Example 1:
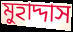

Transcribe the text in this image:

মুহাদ্দাস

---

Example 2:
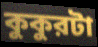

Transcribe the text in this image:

কুকুরটা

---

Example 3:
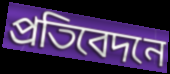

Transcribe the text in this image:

প্রতিবেদনে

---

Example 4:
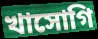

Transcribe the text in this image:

খাসোগি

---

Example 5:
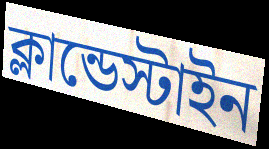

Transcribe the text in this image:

ক্লান্ডেস্টাইন